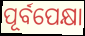
ପୂର୍ବପେକ୍ଷା